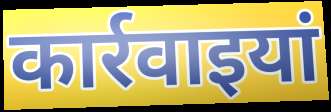
कार्रवाइयां